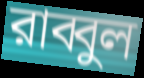
রাব্বুল